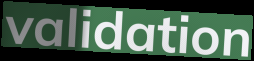
validation